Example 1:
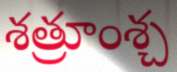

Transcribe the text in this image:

శత్రూంశ్చ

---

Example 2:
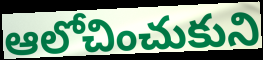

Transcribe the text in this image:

ఆలోచించుకుని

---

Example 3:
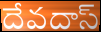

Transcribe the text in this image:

దేవదాస్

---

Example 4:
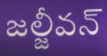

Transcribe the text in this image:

జల్జీవన్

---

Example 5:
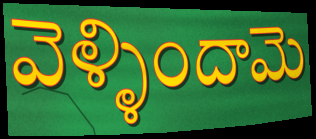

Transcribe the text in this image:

వెళ్ళిందామె